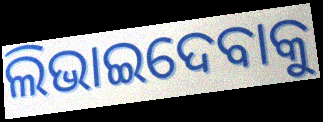
ଲିଭାଇଦେବାକୁ